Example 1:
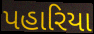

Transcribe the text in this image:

પહારિયા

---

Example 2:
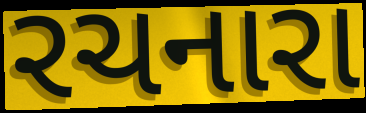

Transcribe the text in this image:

રચનારા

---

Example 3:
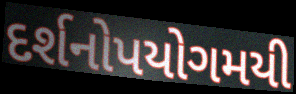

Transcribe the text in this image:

દર્શનોપયોગમયી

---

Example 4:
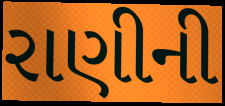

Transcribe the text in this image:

રાણીની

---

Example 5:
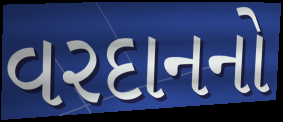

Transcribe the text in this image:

વરદાનનો